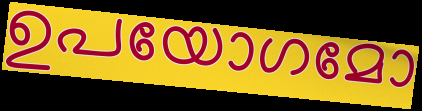
ഉപയോഗമോ